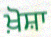
ਖ਼ੋਸ਼ਾ